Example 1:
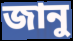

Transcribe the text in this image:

জানু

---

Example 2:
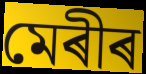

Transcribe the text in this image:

মেৰীৰ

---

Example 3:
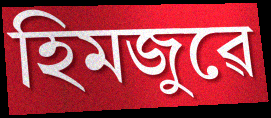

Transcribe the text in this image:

হিমজুৱে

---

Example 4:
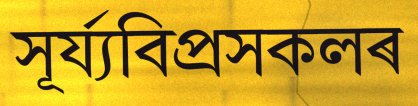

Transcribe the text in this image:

সূৰ্য্যবিপ্ৰসকলৰ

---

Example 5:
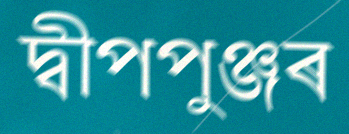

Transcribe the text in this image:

দ্বীপপুঞ্জৰ